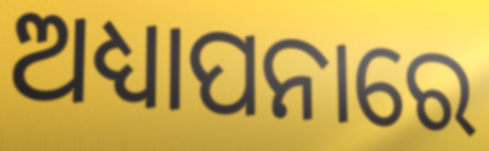
ଅଧ୍ୟାପନାରେ